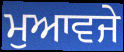
ਮੁਆਵਜੇ